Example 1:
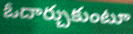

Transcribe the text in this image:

ఓదార్చుకుంటూ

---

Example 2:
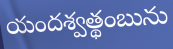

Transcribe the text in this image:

యందశ్వత్థంబును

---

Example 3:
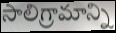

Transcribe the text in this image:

సాలిగ్రామాన్ని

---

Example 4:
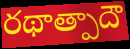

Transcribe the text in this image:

రథాత్పాదౌ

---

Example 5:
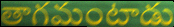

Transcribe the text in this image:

తాగమంటాడు